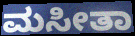
ಮಸೀತಾ